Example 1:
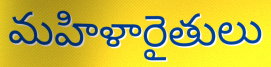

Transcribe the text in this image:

మహిళారైతులు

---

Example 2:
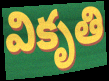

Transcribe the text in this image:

వికృతి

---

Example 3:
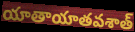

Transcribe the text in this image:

యాతాయాతవశాత్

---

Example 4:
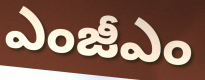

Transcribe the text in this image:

ఎంజీఎం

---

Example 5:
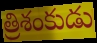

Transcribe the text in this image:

త్రిశంకుడు